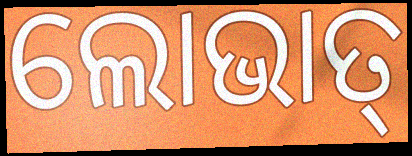
ଲୋଭାତ୍